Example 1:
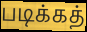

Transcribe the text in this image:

படிக்கத்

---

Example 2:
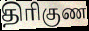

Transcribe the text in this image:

திரிகுண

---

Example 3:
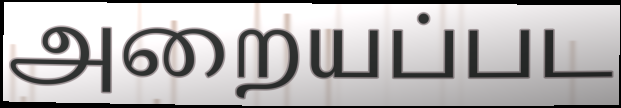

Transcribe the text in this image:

அறையப்பட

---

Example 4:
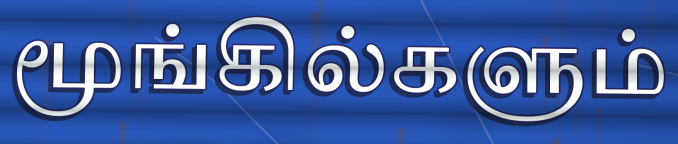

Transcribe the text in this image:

மூங்கில்களும்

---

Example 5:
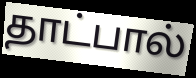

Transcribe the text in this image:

தாட்பால்